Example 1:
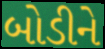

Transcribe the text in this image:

બોડીને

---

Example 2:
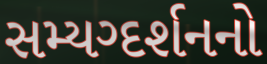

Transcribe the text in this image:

સમ્યગ્દર્શનનો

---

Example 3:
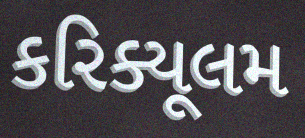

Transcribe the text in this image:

કરિક્યૂલમ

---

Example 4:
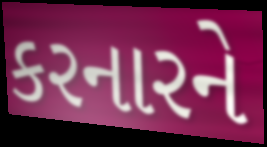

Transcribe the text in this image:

કરનારને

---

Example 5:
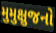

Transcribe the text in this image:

મુમુક્ષુજનો